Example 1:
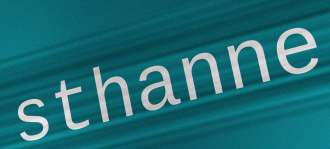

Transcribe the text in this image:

sthanne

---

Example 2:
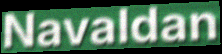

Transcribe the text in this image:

Navaldan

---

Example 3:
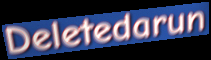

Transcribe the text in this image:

Deletedarun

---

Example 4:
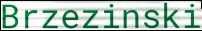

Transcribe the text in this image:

Brzezinski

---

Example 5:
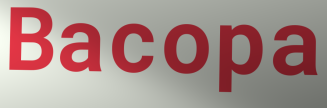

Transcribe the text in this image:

Bacopa